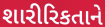
શારીરિકતાને